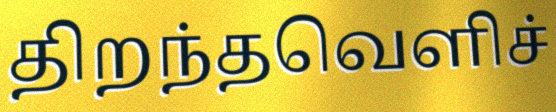
திறந்தவெளிச்